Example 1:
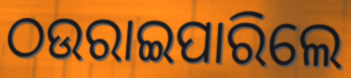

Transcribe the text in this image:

ଠଉରାଇପାରିଲେ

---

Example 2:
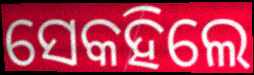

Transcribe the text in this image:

ସେକହିଲେ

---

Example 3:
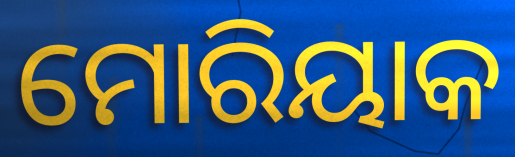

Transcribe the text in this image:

ମୋରିୟାକ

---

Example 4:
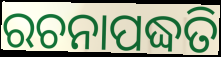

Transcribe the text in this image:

ରଚନାପଦ୍ଧତି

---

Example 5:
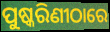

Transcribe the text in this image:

ପୁଷ୍କରିଣୀଠାରେ